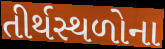
તીર્થસ્થળોના